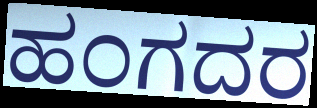
ಹಂಗದರ